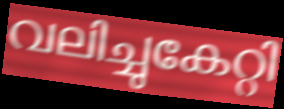
വലിച്ചുകേറ്റി